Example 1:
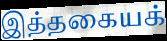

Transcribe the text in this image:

இத்தகையக்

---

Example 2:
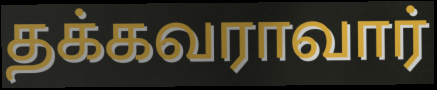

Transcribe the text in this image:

தக்கவராவார்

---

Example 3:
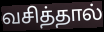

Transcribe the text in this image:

வசித்தால்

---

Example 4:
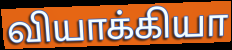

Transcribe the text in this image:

வியாக்கியா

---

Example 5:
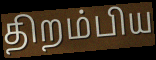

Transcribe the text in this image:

திறம்பிய